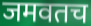
जमवतच